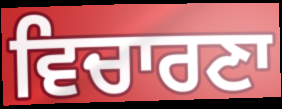
ਵਿਚਾਰਣਾ